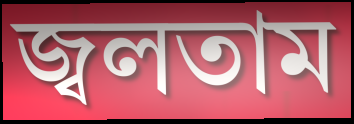
জ্বলতাম